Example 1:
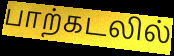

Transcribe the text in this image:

பாற்கடலில்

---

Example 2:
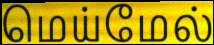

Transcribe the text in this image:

மெய்மேல்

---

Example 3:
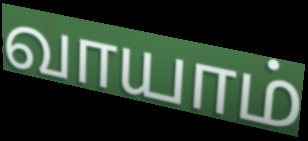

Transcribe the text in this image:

வாயாம்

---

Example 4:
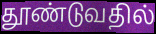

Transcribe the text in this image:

தூண்டுவதில்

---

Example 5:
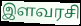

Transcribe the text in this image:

இளவரசி